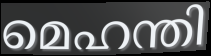
മെഹന്തി